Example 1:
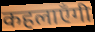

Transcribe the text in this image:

कहलाएँगी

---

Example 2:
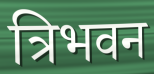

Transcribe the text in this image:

त्रिभवन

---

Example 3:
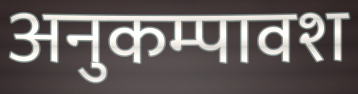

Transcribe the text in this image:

अनुकम्पावश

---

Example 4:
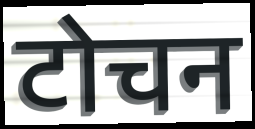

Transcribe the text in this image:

टोचन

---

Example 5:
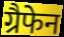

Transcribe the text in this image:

ग्रैफेन